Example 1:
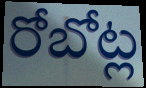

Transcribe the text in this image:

రోబోట్ల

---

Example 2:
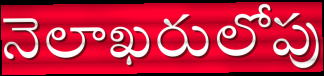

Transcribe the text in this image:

నెలాఖరులోపు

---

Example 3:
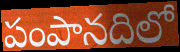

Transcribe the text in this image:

పంపానదిలో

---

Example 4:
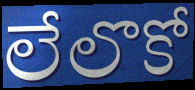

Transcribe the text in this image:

లేలొకో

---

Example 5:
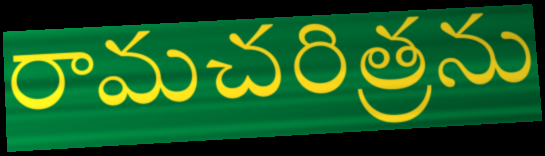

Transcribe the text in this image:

రామచరిత్రను